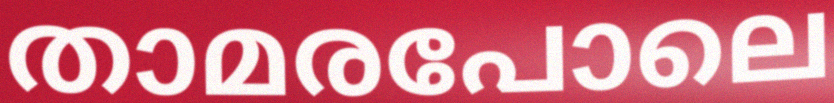
താമരപോലെ